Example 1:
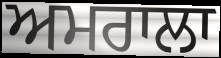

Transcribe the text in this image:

ਅਮਰਾਲਾ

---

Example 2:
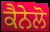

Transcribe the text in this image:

ਕੈਨੇਲੋ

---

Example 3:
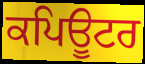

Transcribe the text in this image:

ਕਪਿਊਟਰ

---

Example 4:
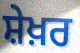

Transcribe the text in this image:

ਸ਼ੇਖ਼ਰ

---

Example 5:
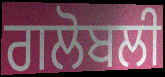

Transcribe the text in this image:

ਗਲੋਬਲੀ